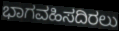
ಭಾಗವಹಿಸದಿರಲು